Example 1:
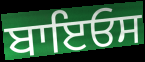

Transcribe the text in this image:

ਬਾਇਓਸ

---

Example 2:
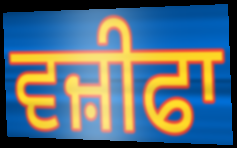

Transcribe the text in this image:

ਵਜ਼ੀਫਾ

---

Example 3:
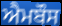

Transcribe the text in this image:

ਐਮਬੌਸ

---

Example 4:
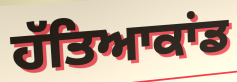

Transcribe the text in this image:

ਹੱਤਿਆਕਾਂਡ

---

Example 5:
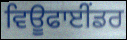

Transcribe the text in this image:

ਵਿਊਫਾਈਂਡਰ